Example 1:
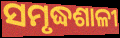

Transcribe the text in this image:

ସମୃଦ୍ଧଶାଳୀ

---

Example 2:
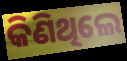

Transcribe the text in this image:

କିଣିଥିଲେ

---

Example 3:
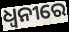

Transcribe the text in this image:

ଧ୍ଵନୀରେ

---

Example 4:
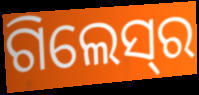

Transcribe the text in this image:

ଗିଲେସ୍‍ର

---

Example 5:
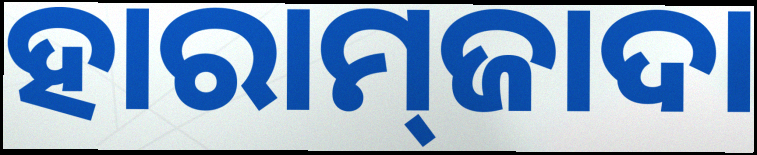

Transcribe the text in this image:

ହାରାମ୍‌ଜାଦା